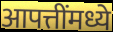
आपत्तींमध्ये